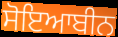
ਸੋਇਆਬੀਨ